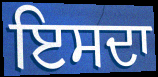
ਇਸਦਾ